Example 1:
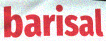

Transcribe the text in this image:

barisal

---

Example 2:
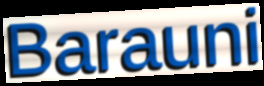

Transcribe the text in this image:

Barauni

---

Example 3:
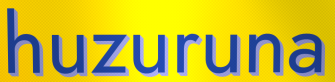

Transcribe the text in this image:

huzuruna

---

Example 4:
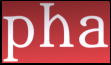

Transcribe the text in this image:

pha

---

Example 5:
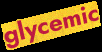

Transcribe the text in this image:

glycemic